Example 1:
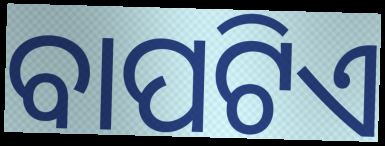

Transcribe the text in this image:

ବାପଟିଏ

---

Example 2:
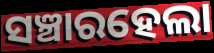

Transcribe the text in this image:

ସଞ୍ଚାରହେଲା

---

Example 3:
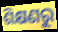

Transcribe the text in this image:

ଶିକ୍ଷଣରୁ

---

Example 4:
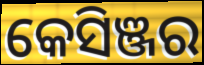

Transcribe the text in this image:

କେସିଞ୍ଜର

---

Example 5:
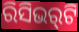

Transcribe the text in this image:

ରିସିଭର୍‌ଟି